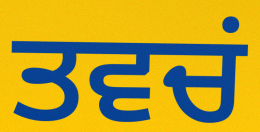
ਤਵਚਂ